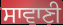
ਸਾਵਾਣੀ